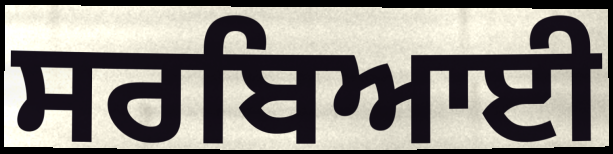
ਸਰਬਿਆਈ